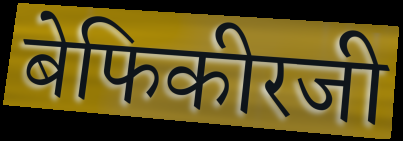
बेफिकीरजी